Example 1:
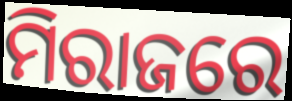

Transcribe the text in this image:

ମିରାଜରେ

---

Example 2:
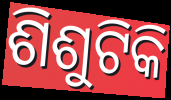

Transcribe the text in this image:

ଶିଶୁଟିକି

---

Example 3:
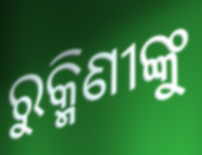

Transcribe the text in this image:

ରୁକ୍ମିଣୀଙ୍କୁ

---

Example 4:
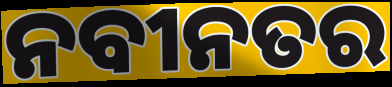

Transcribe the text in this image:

ନବୀନତର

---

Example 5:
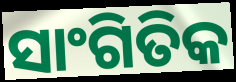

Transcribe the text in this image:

ସାଂଗିତିକ